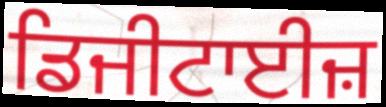
ਡਿਜੀਟਾਈਜ਼